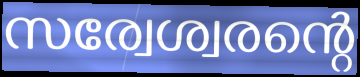
സര്വേശ്വരന്റെ